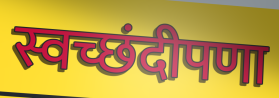
स्वच्छंदीपणा